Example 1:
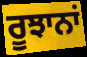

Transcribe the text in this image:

ਰੂਝਾਨਾਂ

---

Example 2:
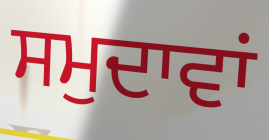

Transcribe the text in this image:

ਸਮੁਦਾਵਾਂ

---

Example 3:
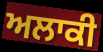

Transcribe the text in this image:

ਅਲਾਕੀ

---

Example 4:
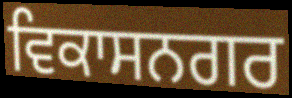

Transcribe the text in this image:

ਵਿਕਾਸਨਗਰ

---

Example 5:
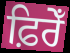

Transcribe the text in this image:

ਫ਼ਿਰੇਁ